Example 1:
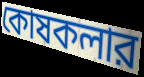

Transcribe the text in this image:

কোষকলার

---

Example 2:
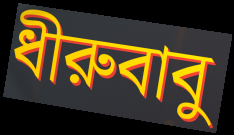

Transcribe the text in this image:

ধীরুবাবু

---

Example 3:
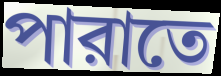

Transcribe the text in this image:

পারাতে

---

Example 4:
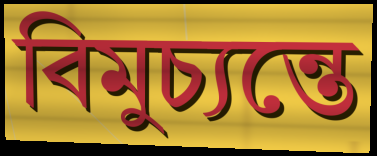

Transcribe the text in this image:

বিমুচ্যন্তে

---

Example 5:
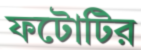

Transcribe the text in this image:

ফটোটির